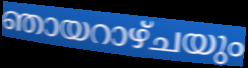
ഞായറാഴ്ചയും